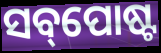
ସବ୍‌ପୋଷ୍ଟ